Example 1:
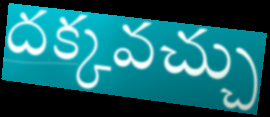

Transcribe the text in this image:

దక్కవచ్చు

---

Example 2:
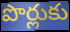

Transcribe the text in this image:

పొర్లుకు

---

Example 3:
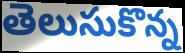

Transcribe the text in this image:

తెలుసుకొన్న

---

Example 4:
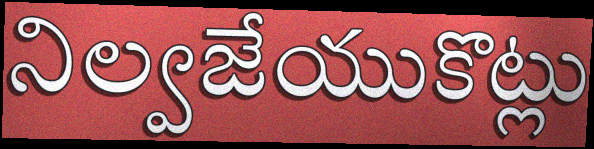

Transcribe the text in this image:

నిల్వజేయుకొట్లు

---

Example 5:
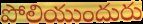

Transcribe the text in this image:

పోలియుందురు